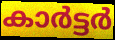
കാർട്ടർ